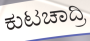
ಕುಟಚಾದ್ರಿ